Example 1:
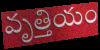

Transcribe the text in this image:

వృత్తియం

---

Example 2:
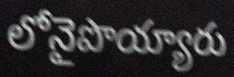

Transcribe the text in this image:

లోనైపొయ్యారు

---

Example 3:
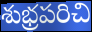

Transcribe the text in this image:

శుభ్రపరిచి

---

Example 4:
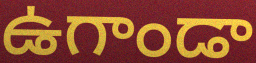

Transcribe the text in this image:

ఉగాండా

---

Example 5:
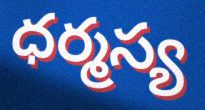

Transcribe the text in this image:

ధర్మస్య